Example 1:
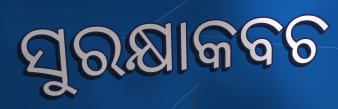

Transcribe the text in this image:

ସୁରକ୍ଷାକବଚ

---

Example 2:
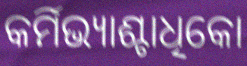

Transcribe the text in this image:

କର୍ମିଭ୍ୟାଶ୍ଚାଧିକୋ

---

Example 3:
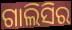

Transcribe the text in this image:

ଗାଲିସିର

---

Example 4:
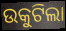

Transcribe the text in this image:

ଉକୁଟିଲା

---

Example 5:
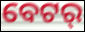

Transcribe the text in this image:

ବେଟର୍